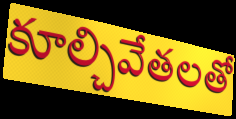
కూల్చివేతలతో